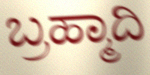
ಬ್ರಹ್ಮಾದಿ